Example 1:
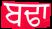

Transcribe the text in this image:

ਬਢਾ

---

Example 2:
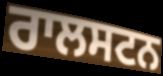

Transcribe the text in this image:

ਰਾਲਸਟਨ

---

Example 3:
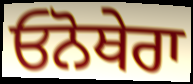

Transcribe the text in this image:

ਓਨੋਥੇਰਾ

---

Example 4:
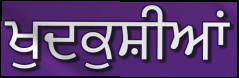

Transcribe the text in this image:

ਖੁਦਕੁਸ਼ੀਆਂ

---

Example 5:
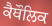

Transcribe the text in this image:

ਕੈਥੌਲਿਕ